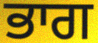
ਭਾਗ